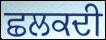
ਛਲਕਦੀ